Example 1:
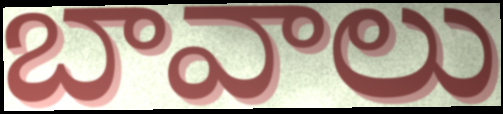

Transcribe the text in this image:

బావాలు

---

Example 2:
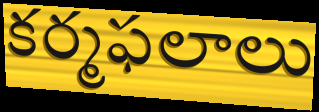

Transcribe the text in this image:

కర్మఫలాలు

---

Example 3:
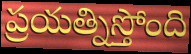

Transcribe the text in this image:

ప్రయత్నిస్తోంది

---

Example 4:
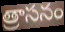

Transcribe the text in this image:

త్రాసనం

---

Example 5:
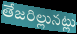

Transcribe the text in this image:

తేజరిల్లునట్లు